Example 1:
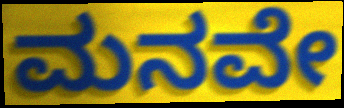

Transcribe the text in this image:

ಮನವೇ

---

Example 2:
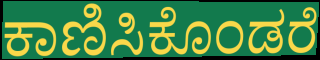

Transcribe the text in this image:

ಕಾಣಿಸಿಕೊಂಡರೆ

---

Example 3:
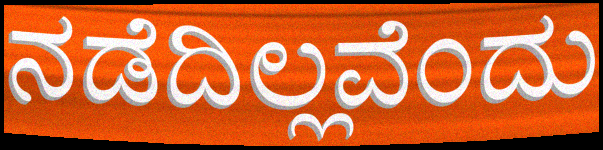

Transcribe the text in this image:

ನಡೆದಿಲ್ಲವೆಂದು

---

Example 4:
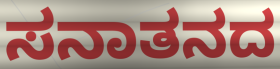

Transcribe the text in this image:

ಸನಾತನದ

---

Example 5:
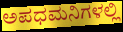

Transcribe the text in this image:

ಅಪಧಮನಿಗಳಲ್ಲಿ